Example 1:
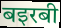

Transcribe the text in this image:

बइरबी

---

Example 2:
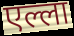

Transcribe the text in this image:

एल्ला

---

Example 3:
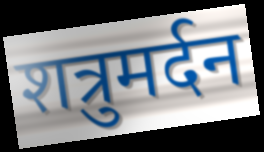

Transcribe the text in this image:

शत्रुमर्दन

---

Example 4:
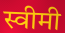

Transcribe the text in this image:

स्वीमी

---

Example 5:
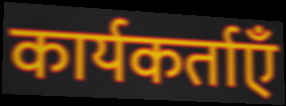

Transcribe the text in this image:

कार्यकर्ताएँ